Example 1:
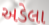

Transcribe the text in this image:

અડેલા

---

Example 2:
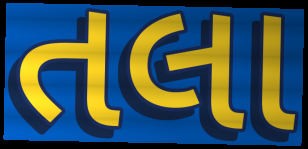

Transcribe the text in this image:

તલા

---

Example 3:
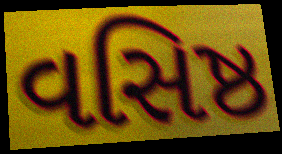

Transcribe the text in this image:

વસિષ્ઠ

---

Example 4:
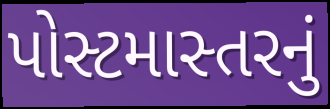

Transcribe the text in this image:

પોસ્ટમાસ્તરનું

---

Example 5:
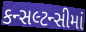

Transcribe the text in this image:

કન્સલ્ટન્સીમાં